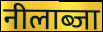
नीलाब्जा